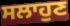
ਸਲਾਹੁਣ